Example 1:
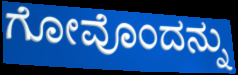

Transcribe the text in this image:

ಗೋವೊಂದನ್ನು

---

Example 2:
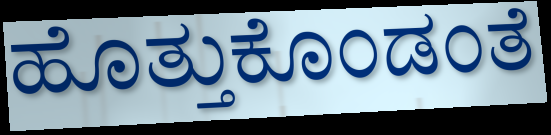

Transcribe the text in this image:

ಹೊತ್ತುಕೊಂಡಂತೆ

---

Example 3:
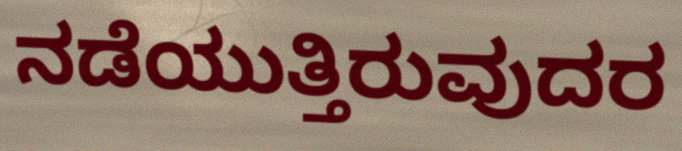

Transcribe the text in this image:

ನಡೆಯುತ್ತಿರುವುದರ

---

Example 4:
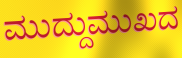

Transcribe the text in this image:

ಮುದ್ದುಮುಖದ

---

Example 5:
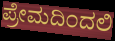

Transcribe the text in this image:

ಪ್ರೇಮದಿಂದಲಿ